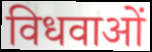
विधवाओं